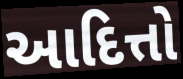
આદિત્તો